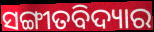
ସଙ୍ଗୀତବିଦ୍ୟାର